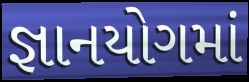
જ્ઞાનયોગમાં